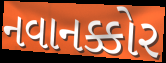
નવાનક્કોર